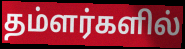
தம்ளர்களில்